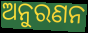
ଅନୁରଣନ